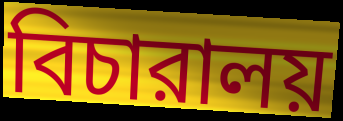
বিচারালয়